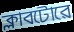
ক্লাবটোৱে